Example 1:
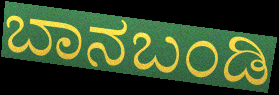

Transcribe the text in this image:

ಬಾನಬಂಡಿ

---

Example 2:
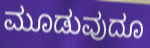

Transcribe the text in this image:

ಮೂಡುವುದೂ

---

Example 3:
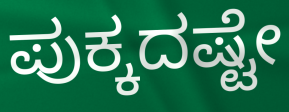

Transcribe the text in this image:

ಪುಕ್ಕದಷ್ಟೇ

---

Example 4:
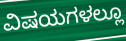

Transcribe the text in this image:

ವಿಷಯಗಳಲ್ಲೂ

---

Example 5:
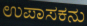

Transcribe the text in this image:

ಉಪಾಸಕನು